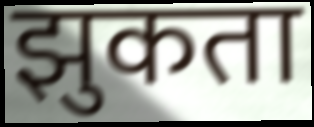
झुकता